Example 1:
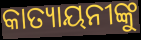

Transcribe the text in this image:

କାତ୍ୟାୟନୀଙ୍କୁ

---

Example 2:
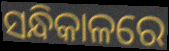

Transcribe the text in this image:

ସନ୍ଧିକାଳରେ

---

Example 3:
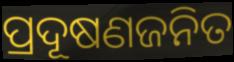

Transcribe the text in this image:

ପ୍ରଦୂଷଣଜନିତ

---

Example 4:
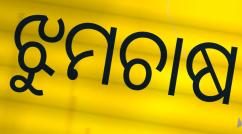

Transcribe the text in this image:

ଝୁମଚାଷ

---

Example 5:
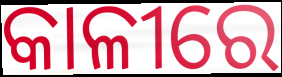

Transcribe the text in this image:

କାଳୀରେ